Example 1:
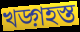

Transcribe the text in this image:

খড়্গহস্ত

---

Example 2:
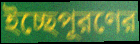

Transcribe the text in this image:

ইচ্ছেপূরণের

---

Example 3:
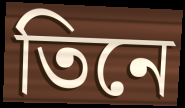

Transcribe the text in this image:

তিনে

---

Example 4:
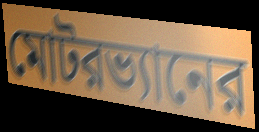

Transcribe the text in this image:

মোটরভ্যানের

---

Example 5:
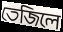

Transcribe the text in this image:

তেজিলে